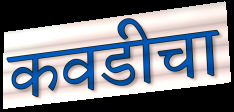
कवडीचा